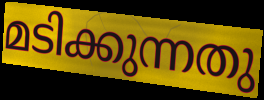
മടിക്കുന്നതു